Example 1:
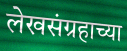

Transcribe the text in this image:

लेखसंग्रहाच्या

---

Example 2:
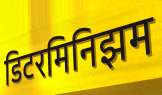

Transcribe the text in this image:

डिटरमिनिझम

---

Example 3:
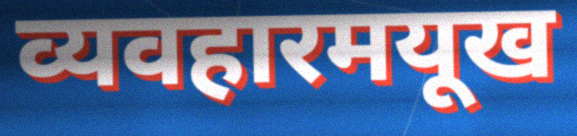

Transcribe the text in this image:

व्यवहारमयूख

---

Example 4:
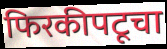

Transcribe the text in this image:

फिरकीपटूचा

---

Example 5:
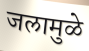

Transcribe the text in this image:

जलामुळे